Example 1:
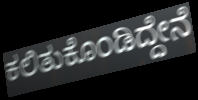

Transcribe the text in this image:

ಕಲಿತುಕೊಂಡಿದ್ದೇನೆ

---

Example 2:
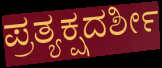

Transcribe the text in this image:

ಪ್ರತ್ಯಕ್ಷದರ್ಶೀ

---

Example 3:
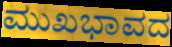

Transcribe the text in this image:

ಮುಖಭಾವದ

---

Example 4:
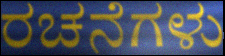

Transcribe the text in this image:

ರಚನೆಗಳು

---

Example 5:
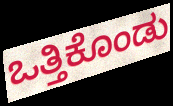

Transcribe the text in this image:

ಒತ್ತಿಕೊಂಡು